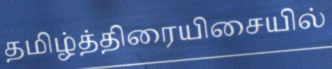
தமிழ்த்திரையிசையில்